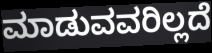
ಮಾಡುವವರಿಲ್ಲದೆ